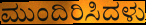
ಮುಂದಿರಿಸಿದಳು